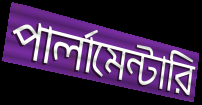
পার্লামেন্টারি